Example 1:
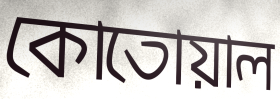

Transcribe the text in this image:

কোতোয়াল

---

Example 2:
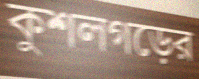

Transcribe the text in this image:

কুশলগড়ের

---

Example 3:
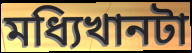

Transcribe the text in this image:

মধ্যিখানটা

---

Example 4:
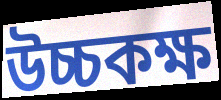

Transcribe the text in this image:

উচ্চকক্ষ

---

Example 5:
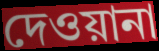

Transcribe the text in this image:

দেওয়ানা